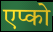
एप्को